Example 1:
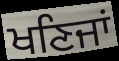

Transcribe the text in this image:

ਖਣਿਜਾਂ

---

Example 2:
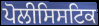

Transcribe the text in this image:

ਪੋਲੀਸਿਸਟਿਕ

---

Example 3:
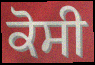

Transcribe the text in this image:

ਕੋਸੀ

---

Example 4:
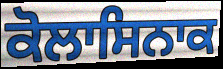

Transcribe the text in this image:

ਕੋਲਾਸਿਨਾਕ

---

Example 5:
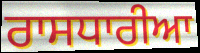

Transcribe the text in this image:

ਰਾਸਧਾਰੀਆ